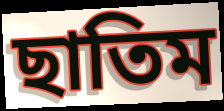
ছাতিম